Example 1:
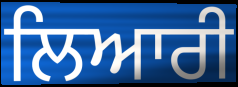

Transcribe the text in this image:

ਲਿਆਰੀ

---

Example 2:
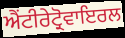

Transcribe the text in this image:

ਐਂਟੀਰੇਟ੍ਰੋਵਾਇਰਲ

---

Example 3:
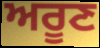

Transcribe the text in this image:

ਅਰੂਣ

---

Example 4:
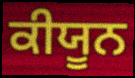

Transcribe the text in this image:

ਕੀਯੂਨ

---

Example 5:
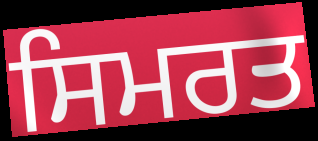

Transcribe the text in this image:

ਸਿਮਰਤ